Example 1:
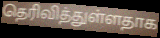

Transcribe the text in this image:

தெரிவித்துள்ளதாக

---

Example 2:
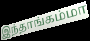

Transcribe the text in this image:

இந்தாங்கம்மா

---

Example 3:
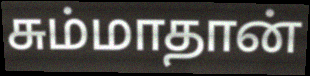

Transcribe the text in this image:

சும்மாதான்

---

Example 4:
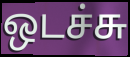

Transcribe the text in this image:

ஒடச்சு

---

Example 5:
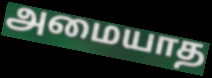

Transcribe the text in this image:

அமையாத